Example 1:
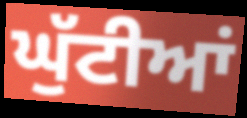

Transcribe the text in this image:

ਘੁੱਟੀਆਂ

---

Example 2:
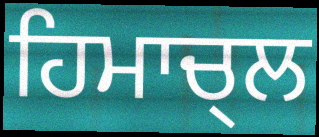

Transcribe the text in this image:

ਹਿਮਾਚ੍ਲ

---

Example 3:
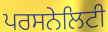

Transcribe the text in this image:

ਪਰਸਨੇਲਿਟੀ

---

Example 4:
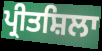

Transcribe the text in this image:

ਪ੍ਰੀਤਸ਼ਿਲਾ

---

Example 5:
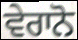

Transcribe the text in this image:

ਵੇਰਾਨੋ